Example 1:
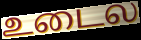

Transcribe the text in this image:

உடைல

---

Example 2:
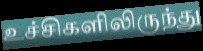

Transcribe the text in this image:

உச்சிகளிலிருந்து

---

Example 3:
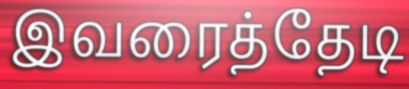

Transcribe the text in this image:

இவரைத்தேடி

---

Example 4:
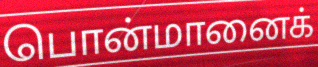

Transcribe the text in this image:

பொன்மானைக்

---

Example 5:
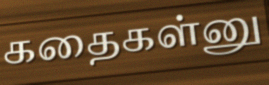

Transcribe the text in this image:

கதைகள்னு